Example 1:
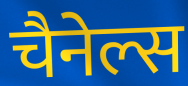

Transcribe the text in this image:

चैनेल्स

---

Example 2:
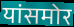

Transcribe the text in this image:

यांसमोर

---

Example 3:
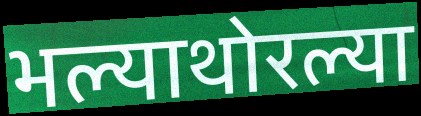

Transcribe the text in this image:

भल्याथोरल्या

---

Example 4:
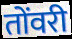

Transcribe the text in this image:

तोंवरी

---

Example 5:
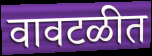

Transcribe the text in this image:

वावटळीत